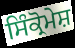
ਸਿੰਕ੍ਰੋਮੇਸ਼